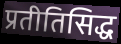
प्रतीतिसिद्ध